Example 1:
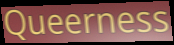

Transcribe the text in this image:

Queerness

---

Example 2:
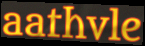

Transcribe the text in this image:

aathvle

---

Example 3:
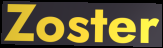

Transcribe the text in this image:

Zoster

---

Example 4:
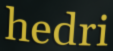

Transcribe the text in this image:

hedri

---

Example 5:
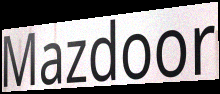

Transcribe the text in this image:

Mazdoor